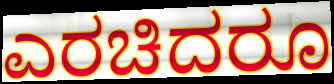
ಎರಚಿದರೂ